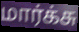
மார்க்சு